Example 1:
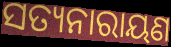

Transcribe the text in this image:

ସତ୍ୟନାରାୟଣ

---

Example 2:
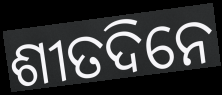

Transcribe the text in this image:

ଶୀତଦିନେ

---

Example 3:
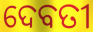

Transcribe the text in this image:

ଦେବତୀ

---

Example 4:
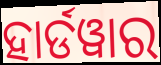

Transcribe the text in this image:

ହାର୍ଡୱାର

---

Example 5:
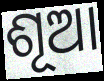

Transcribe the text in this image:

ଶୂଆ